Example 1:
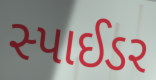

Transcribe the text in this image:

સ્પાઈડર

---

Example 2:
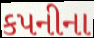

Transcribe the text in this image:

કપનીના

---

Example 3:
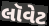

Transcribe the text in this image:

લૉવેટ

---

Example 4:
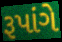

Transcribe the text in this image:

રૂપાંગે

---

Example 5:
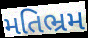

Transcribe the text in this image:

મતિભ્રમ